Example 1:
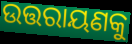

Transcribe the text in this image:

ଉତ୍ତରାୟଣକୁ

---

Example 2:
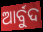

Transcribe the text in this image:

ଆର୍ବୁଦ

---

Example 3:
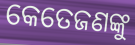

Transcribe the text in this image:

କେତେଜଣଙ୍କୁ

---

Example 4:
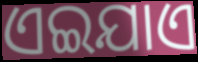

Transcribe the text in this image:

ଏଇଯାଏ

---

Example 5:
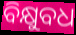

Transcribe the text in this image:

ବିକ୍ଷୁବଧ